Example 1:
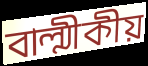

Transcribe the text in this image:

বাল্মীকীয়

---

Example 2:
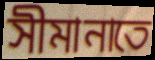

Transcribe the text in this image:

সীমানাতে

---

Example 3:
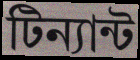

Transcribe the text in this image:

টিন্যান্ট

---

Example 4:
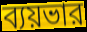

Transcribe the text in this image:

ব্যয়ভার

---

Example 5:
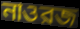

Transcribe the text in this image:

নাওরজ